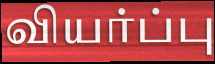
வியர்ப்பு